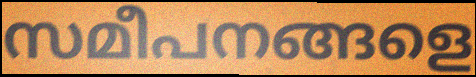
സമീപനങ്ങളെ